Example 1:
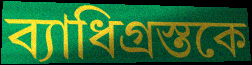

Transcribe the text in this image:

ব্যাধিগ্রস্তকে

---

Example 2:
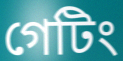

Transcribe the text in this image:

গেটিং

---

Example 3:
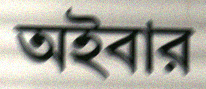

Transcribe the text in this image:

অইবার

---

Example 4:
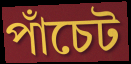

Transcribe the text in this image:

পাঁচেট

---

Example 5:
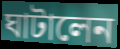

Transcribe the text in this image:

ঘাটালেন